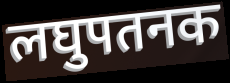
लघुपतनक